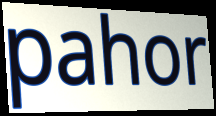
pahor